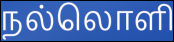
நல்லொளி